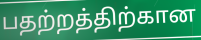
பதற்றத்திற்கான